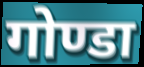
गोण्डा